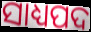
ସାଧ୍ଯପଦ